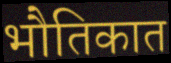
भौतिकात